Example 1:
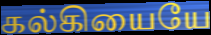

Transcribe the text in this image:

கல்கியையே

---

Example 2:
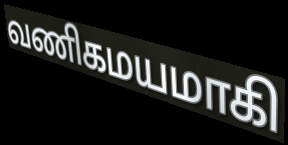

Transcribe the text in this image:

வணிகமயமாகி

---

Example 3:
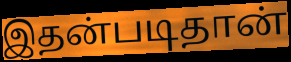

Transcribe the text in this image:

இதன்படிதான்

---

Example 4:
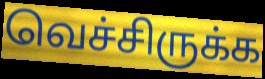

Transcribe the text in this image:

வெச்சிருக்க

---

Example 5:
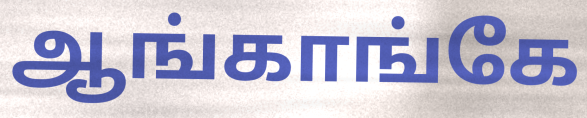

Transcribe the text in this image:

ஆங்காங்கே